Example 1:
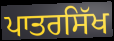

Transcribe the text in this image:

ਪਾਤਰਸਿੱਖ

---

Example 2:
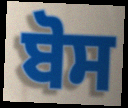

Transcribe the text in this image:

ਬੋਸ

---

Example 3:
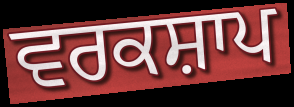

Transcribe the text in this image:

ਵਰਕਸ਼ਾਪ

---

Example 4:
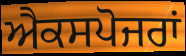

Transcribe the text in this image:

ਐਕਸਪੋਜਰਾਂ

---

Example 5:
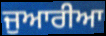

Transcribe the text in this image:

ਜੁਆਰੀਆ